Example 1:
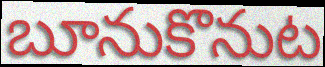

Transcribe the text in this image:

బూనుకొనుట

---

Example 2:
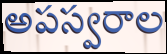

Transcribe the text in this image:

అపస్వరాల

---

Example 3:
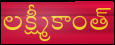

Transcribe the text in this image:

లక్ష్మీకాంత్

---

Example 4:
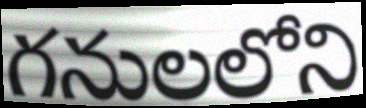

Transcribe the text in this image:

గనులలోని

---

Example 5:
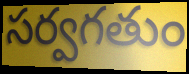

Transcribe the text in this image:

సర్వగతుం